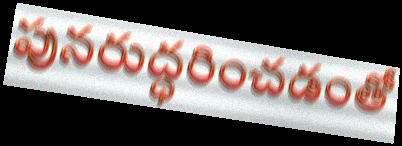
పునరుద్ధరించడంతో